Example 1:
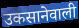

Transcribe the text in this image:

उकसानेवाली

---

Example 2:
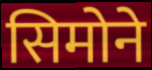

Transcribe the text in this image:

सिमोने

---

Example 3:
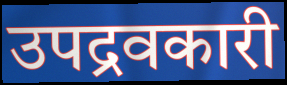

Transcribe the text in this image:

उपद्रवकारी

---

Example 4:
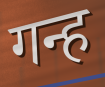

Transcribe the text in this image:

गन्ह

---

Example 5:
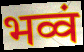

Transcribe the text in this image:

भव्वं